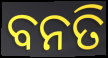
ବନତି